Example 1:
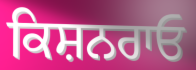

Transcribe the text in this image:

ਕਿਸ਼ਨਰਾਓ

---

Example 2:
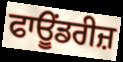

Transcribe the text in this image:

ਫਾਊਂਡਰੀਜ਼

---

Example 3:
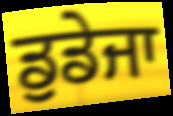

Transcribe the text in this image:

ਡੁਡੇਜਾ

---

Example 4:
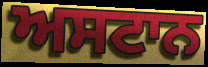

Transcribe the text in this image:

ਅਸਟਾਨ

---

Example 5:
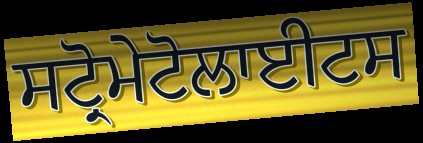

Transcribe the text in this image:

ਸਟ੍ਰੋਮੇਟੋਲਾਈਟਸ